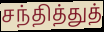
சந்தித்துத்